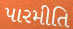
પારમીતિ